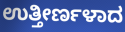
ಉತ್ತೀರ್ಣಳಾದ